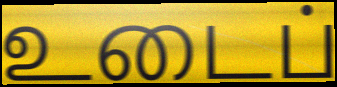
உடைப்